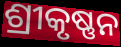
ଶ୍ରୀକୃଷ୍ଣନ